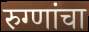
रुग्णांचा